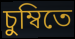
চুম্বিতে